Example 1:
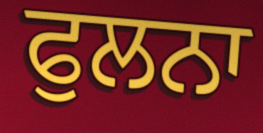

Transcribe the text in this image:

ਫੁਲਨਾ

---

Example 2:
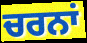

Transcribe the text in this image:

ਚਰਨਾਂ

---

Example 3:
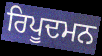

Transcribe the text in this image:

ਰਿਪੂਦਮਨ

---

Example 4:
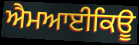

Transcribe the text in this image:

ਐਮਆਈਕਿਊ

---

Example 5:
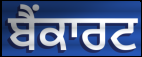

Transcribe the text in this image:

ਬੈਂਕਾਰਟ